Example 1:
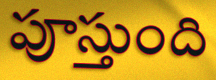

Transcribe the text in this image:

పూస్తుంది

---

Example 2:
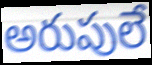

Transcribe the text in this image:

అరుపులే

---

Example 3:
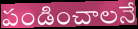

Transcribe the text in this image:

పండించాలనే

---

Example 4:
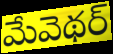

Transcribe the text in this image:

మేవెథర్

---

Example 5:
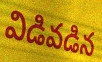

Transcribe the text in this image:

విడివడిన